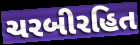
ચરબીરહિત